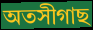
অতসীগাছ